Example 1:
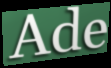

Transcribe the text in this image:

Ade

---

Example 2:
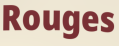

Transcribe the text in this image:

Rouges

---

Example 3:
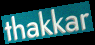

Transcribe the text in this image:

thakkar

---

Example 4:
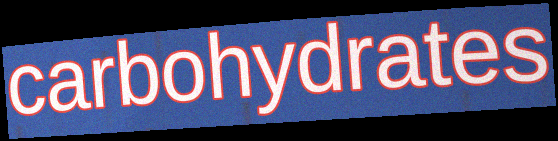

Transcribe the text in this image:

carbohydrates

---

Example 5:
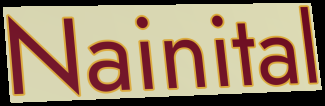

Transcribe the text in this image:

Nainital